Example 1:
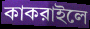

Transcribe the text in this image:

কাকরাইলে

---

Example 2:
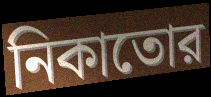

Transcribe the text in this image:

নিকাতোর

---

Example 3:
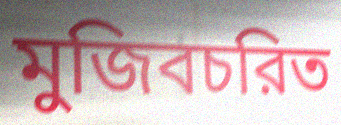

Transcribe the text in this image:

মুজিবচরিত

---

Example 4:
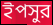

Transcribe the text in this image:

ইপসুর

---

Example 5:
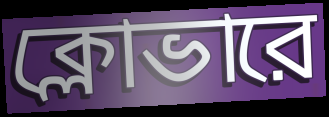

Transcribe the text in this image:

ক্লোভারে